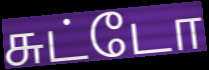
சுட்டோ